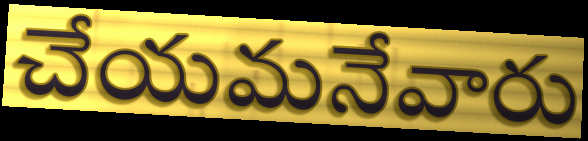
చేయమనేవారు